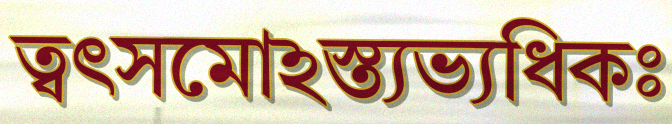
ত্বৎসমোঽস্ত্যভ্যধিকঃ